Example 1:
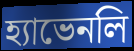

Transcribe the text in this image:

হ্যাভেনলি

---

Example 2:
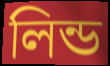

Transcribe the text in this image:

লিন্ড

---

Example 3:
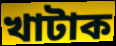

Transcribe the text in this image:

খাটাক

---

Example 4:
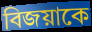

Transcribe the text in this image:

বিজয়াকে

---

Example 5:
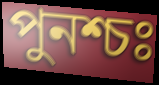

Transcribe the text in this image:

পুনশ্চঃ